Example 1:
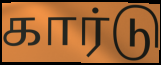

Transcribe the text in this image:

கார்டு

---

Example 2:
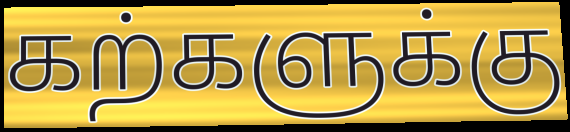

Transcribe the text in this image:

கற்களுக்கு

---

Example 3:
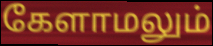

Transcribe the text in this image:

கேளாமலும்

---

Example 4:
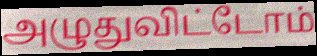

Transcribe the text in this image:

அழுதுவிட்டோம்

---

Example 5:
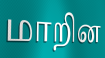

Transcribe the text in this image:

மாறின